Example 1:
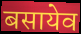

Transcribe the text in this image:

बसायेव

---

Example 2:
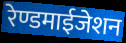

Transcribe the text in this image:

रेण्डमाईजेशन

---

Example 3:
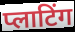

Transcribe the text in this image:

प्लाटिंग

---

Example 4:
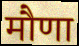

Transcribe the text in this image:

मौणा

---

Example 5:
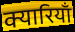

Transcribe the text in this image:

क्यारियाँ